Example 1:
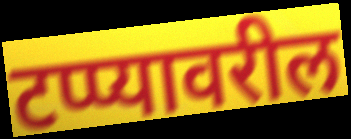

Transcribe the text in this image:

टप्प्यावरील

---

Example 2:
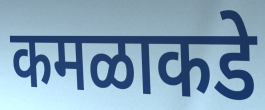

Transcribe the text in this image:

कमळाकडे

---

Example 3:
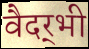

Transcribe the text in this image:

वैदर्भी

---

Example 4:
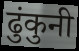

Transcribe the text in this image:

ढुंकुनी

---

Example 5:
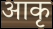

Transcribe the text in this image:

आकृ